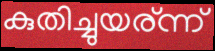
കുതിച്ചുയര്ന്ന്